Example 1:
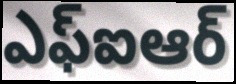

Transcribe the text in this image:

ఎఫ్ఐఆర్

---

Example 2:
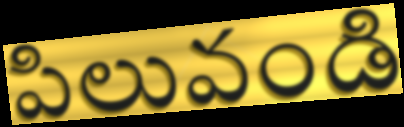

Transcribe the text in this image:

పిలువండి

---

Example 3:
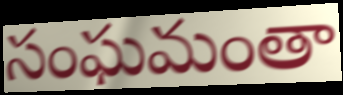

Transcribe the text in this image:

సంఘమంతా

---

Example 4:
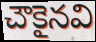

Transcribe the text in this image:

చౌకైనవి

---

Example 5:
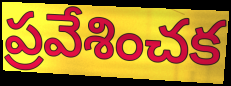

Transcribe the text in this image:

ప్రవేశించక